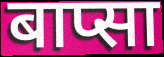
बाप्सा